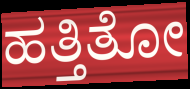
ಹತ್ತಿತೋ